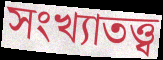
সংখ্যাতত্ত্ব